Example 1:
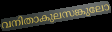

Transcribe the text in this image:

വനിതാകുലസങ്കുലോ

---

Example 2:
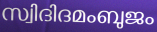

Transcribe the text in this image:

സ്വിദിദമംബുജം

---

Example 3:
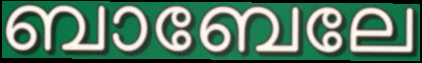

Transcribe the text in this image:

ബാബേലേ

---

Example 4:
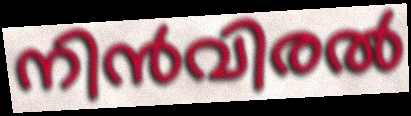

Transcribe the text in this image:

നിൻവിരൽ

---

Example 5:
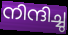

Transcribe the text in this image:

നിന്ദിച്ചു